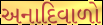
અનાદિવાળો